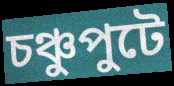
চঞ্চুপুটে